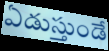
ఏడుస్తుండే